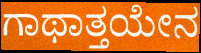
ಗಾಥಾತ್ತಯೇನ